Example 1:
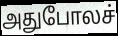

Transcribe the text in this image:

அதுபோலச்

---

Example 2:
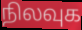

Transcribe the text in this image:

நிலவுக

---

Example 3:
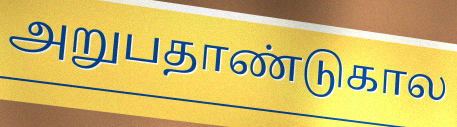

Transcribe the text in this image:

அறுபதாண்டுகால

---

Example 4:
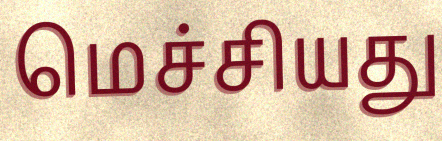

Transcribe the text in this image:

மெச்சியது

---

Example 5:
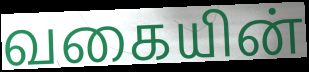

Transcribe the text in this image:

வகையின்